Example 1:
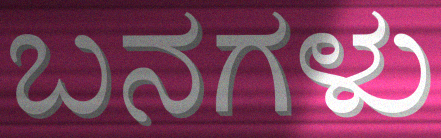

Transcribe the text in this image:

ಬನಗಳು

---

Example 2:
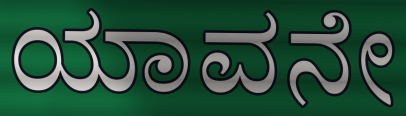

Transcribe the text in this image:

ಯಾವನೇ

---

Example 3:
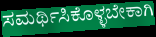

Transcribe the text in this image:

ಸಮರ್ಥಿಸಿಕೊಳ್ಳಬೇಕಾಗಿ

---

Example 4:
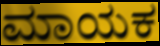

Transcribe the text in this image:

ಮಾಯಕ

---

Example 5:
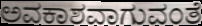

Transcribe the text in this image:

ಅವಕಾಶವಾಗುವಂತೆ